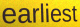
earliest